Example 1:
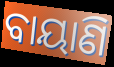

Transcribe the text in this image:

ବାୟାଣି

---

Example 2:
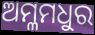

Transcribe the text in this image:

ଅମ୍ଳମଧୁର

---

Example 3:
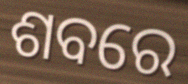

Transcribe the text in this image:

ଶବରେ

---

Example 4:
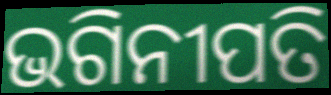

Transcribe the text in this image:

ଭଗିନୀପତି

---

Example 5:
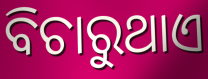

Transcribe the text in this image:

ବିଚାରୁଥାଏ